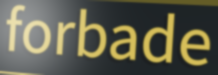
forbade